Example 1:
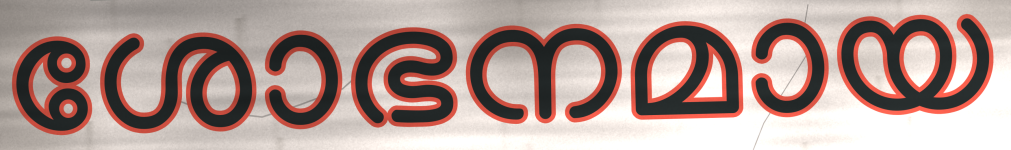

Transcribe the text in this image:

ശോഭനമായ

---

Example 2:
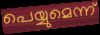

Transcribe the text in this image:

പെയ്യുമെന്ന്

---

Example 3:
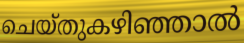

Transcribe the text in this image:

ചെയ്തുകഴിഞ്ഞാൽ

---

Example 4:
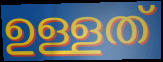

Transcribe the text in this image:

ഉള്ളത്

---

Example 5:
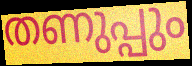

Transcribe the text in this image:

തണുപ്പും